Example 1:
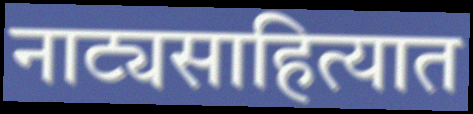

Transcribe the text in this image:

नाट्यसाहित्यात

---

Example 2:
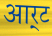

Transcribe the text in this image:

आर्ट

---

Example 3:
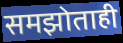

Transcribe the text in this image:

समझोताही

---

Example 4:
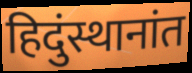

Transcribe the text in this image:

हिदुंस्थानांत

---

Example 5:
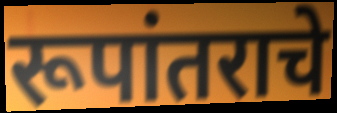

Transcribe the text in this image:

रूपांतराचे